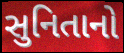
સુનિતાનો